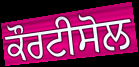
ਕੌਰਟੀਸੋਲ